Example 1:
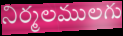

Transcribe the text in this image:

నిర్మలములగు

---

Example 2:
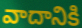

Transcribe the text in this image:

వాదానికి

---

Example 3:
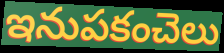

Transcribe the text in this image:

ఇనుపకంచెలు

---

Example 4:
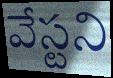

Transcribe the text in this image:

వేస్టని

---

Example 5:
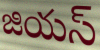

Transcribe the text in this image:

జియస్